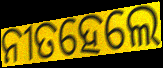
ନୀତହେଲେ